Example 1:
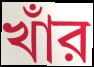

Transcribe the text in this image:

খাঁর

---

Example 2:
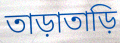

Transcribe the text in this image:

তাড়াতাড়ি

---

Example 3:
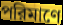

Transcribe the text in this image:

পরিমাণে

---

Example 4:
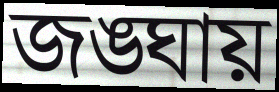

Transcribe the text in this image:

জঙ্ঘায়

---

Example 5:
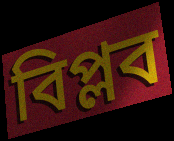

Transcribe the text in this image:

বিপ্লব